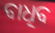
ବାଧିବ